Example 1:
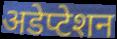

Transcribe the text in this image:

अडेप्टेशन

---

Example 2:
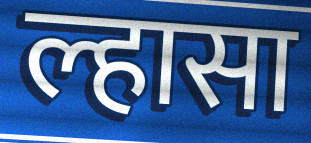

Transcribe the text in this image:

ल्हासा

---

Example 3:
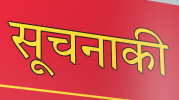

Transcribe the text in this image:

सूचनाकी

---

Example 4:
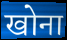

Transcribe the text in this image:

खोना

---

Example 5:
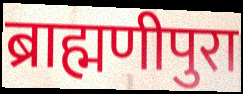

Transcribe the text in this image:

ब्राह्मणीपुरा